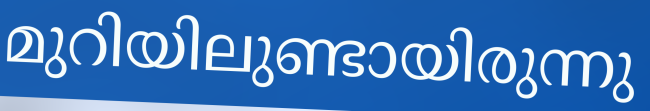
മുറിയിലുണ്ടായിരുന്നു